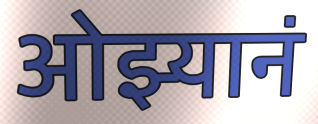
ओझ्यानं